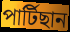
পাৰ্টিছান